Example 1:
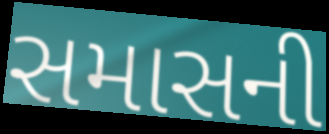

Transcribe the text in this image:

સમાસની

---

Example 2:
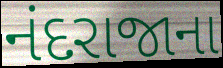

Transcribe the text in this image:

નંદરાજાના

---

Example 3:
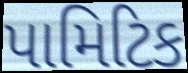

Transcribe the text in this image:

પામિટિક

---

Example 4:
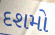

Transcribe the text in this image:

દશમો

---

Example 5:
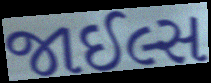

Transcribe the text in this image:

જાઈલ્સ